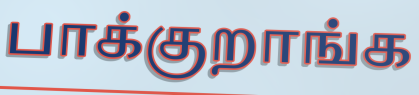
பாக்குறாங்க